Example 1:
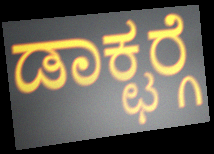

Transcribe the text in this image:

ಡಾಕ್ಟರ್‍ಗೆ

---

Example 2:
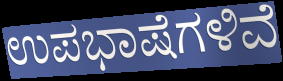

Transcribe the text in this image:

ಉಪಭಾಷೆಗಳಿವೆ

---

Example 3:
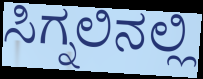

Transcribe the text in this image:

ಸಿಗ್ನಲಿನಲ್ಲಿ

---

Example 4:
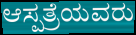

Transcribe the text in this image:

ಆಸ್ಪತ್ರೆಯವರು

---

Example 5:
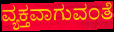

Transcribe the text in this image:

ವ್ಯಕ್ತವಾಗುವಂತೆ